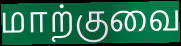
மாற்குவை